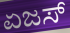
ಏಜಸ್